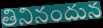
తినినందున